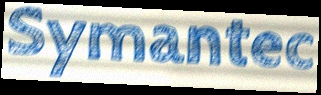
Symantec